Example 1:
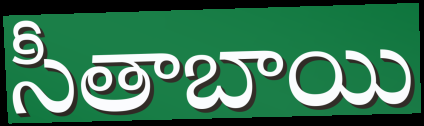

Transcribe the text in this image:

సీతాబాయి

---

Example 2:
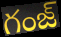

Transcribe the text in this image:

గంజ్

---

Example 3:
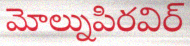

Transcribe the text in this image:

మోల్నుపిరవిర్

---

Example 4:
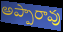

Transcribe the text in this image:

అప్పారావు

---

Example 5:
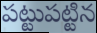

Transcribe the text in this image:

పట్టుపట్టిన